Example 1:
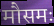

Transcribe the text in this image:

मौसमः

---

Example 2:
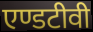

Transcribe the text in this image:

एण्डटीवी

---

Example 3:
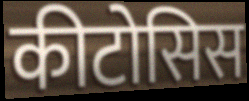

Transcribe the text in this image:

कीटोसिस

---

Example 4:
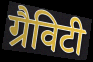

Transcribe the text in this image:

ग्रैविटी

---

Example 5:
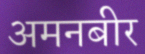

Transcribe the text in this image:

अमनबीर